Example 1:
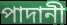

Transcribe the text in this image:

পাদানী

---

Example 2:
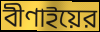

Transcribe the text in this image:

বীণাইয়ের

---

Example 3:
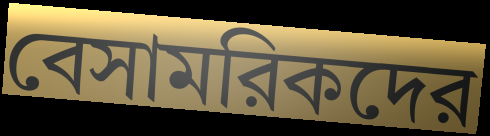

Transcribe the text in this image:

বেসামরিকদের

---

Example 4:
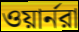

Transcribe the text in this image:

ওয়ার্নরা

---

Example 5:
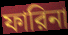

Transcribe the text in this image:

ফারিনা